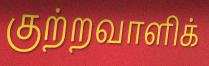
குற்றவாளிக்